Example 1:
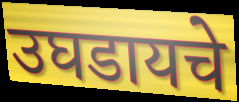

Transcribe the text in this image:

उघडायचे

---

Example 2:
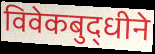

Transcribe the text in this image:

विवेकबुद्धीने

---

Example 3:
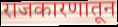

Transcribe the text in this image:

राजकारणातून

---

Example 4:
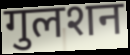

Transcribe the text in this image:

गुलशन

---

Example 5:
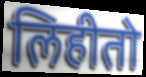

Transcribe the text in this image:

लिहीतो